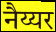
नैय्यर